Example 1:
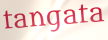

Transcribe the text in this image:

tangata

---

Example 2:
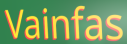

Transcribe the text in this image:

Vainfas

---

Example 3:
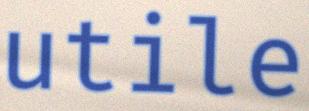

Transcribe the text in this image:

utile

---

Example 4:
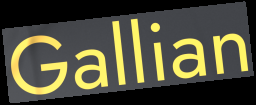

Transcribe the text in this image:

Gallian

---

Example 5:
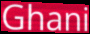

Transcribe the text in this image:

Ghani